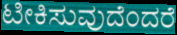
ಟೀಕಿಸುವುದೆಂದರೆ